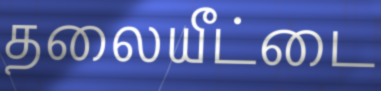
தலையீட்டை